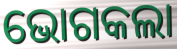
ଭୋଗକଲା